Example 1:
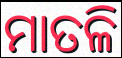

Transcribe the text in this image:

ମାତଳି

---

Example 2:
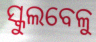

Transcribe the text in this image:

ସ୍କୁଲବେଳୁ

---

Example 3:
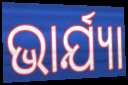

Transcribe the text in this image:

ଭାର୍ଯ୍ୟା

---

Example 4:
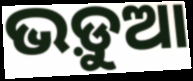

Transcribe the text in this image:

ଭଡ଼ୁଆ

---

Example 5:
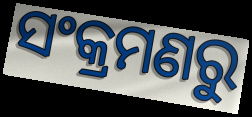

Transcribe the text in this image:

ସଂକ୍ରମଣରୁ